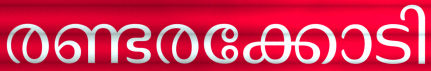
രണ്ടരക്കോടി